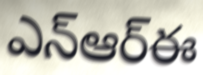
ఎన్ఆర్ఈ